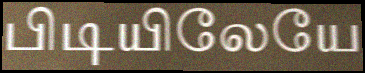
பிடியிலேயே